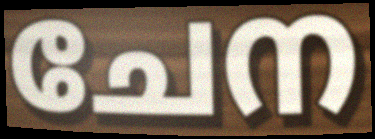
ചേന